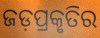
ଜଡ଼ପ୍ରକୃତିର